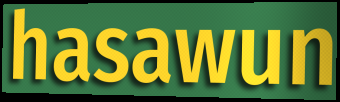
hasawun